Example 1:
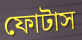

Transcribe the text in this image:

ফোটাস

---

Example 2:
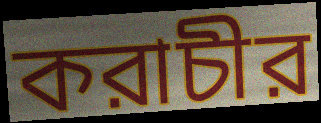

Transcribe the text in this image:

করাচীর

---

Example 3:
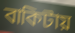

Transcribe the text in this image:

বাকিটায়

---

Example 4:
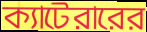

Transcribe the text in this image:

ক্যাটেরারের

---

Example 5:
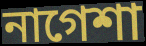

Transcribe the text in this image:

নাগেশা